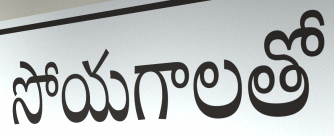
సోయగాలతో